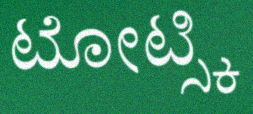
ಟೋಟ್ಸ್ಕಿ